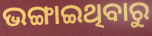
ଭଙ୍ଗାଇଥିବାରୁ